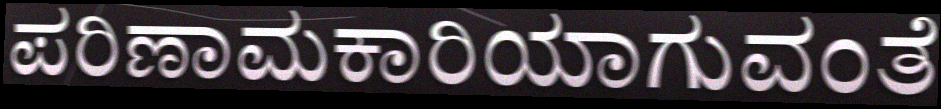
ಪರಿಣಾಮಕಾರಿಯಾಗುವಂತೆ